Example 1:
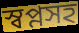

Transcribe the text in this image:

স্বপ্নসহ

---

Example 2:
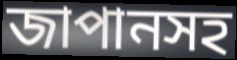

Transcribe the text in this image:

জাপানসহ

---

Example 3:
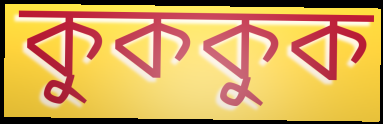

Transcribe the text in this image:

কুককুক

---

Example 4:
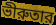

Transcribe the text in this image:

ভীরুতার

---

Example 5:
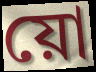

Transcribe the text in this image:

য়ো